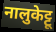
नालुकेट्टू